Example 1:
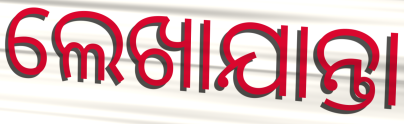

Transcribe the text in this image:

ଲେଖାଯାନ୍ତା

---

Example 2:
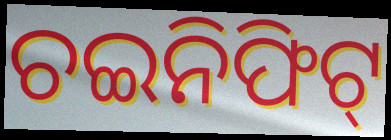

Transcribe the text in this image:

ଚଇନିଫିଟ୍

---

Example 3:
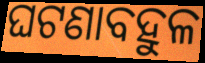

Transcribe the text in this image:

ଘଟଣାବହୁଳ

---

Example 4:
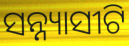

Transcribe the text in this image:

ସନ୍ନ୍ୟାସୀଟି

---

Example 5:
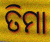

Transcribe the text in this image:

ତିମା